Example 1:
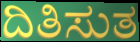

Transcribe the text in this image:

ದಿತಿಸುತ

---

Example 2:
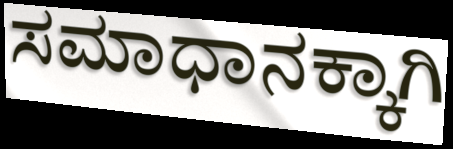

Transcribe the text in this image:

ಸಮಾಧಾನಕ್ಕಾಗಿ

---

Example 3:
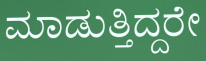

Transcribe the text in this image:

ಮಾಡುತ್ತಿದ್ದರೇ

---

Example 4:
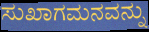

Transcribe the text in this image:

ಸುಖಾಗಮನವನ್ನು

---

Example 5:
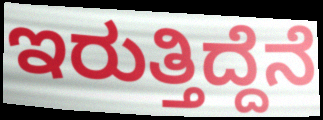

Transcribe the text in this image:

ಇರುತ್ತಿದ್ದೆನೆ